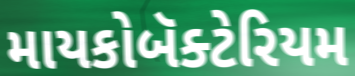
માયકોબૅક્ટેરિયમ